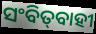
ସଂବିତ୍‌ବାହୀ